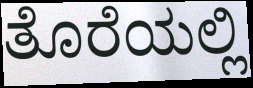
ತೊರೆಯಲ್ಲಿ